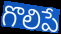
గొలిపే